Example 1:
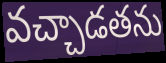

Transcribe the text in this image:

వచ్చాడతను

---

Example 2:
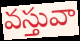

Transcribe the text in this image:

వస్తువా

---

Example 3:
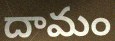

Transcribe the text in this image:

దామం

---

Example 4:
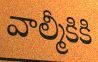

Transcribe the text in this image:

వాల్మీకికి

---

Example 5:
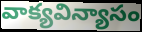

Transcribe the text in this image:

వాక్యవిన్యాసం